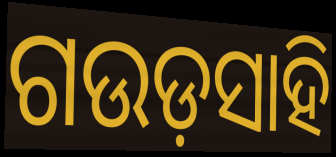
ଗଉଡ଼ସାହି